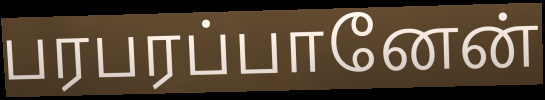
பரபரப்பானேன்